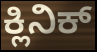
ಕ್ಲಿನಿಕ್